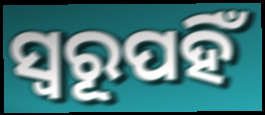
ସ୍ୱରୂପହିଁ